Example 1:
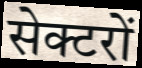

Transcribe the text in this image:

सेक्टरों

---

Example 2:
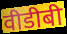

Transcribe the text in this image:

वीडीबी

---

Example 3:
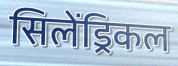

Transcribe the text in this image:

सिलेंड्रिकल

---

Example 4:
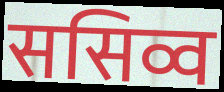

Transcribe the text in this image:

ससिव्व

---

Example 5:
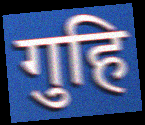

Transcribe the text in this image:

गुहि